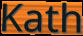
Kath